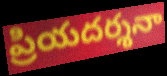
ప్రియదర్శనా